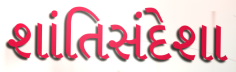
શાંતિસંદેશા